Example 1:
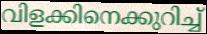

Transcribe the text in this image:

വിളക്കിനെക്കുറിച്ച്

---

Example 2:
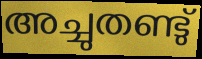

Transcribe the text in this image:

അച്ചുതണ്ടു്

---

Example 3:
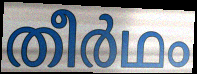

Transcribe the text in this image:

തീർഥം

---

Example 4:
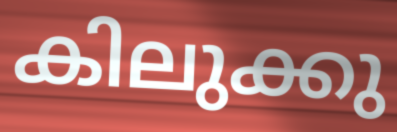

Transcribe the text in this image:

കിലുക്കു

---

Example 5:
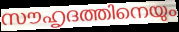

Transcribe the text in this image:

സൗഹൃദത്തിനെയും